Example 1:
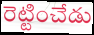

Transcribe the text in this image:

రెట్టించేడు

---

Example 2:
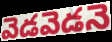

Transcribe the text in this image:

వెడవెడనె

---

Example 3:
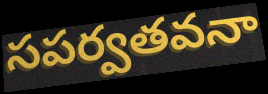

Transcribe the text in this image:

సపర్వతవనా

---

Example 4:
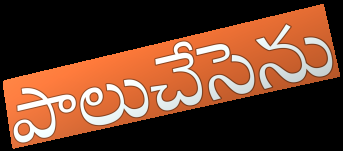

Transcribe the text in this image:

పాలుచేసెను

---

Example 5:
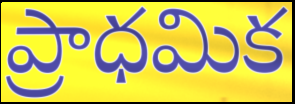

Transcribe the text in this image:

ప్రాధమిక